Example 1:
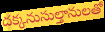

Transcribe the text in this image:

దక్కనుసుల్తానులతో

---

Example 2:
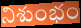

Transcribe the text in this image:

నిశుంభం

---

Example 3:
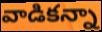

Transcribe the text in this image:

వాడికన్నా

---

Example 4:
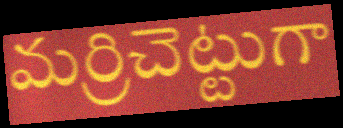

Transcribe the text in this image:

మర్రిచెట్టుగా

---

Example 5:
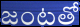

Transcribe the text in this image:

జంటతో